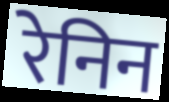
रेनिन